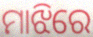
ମାଝିରେ